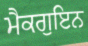
ਮੈਕਗੁਇਨ